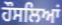
ਹੌਸਲਿਆਂ